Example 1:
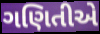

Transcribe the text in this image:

ગણિતીએ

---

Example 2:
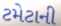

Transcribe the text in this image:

ટમેટાની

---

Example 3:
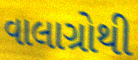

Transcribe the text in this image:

વાલાગ્રોથી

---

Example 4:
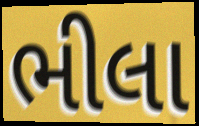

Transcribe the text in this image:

ભીલા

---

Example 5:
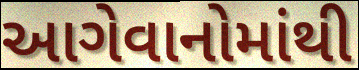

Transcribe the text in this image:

આગેવાનોમાંથી